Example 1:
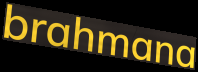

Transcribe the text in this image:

brahmana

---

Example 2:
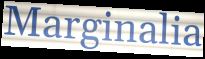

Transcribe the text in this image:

Marginalia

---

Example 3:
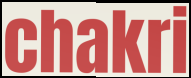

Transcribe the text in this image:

chakri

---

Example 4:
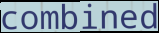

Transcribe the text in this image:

combined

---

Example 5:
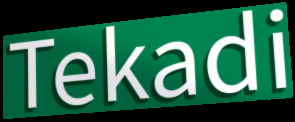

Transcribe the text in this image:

Tekadi